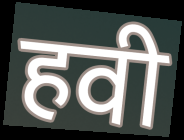
हवी